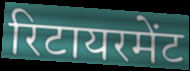
रिटायरमेंट